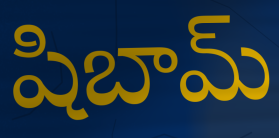
షిబామ్